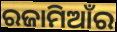
ରଜାମିଆଁର